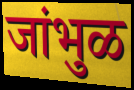
जांभुळ